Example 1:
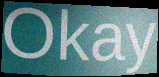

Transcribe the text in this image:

Okay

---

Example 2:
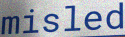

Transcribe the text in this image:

misled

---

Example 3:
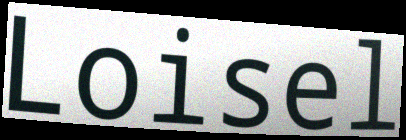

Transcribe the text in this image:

Loisel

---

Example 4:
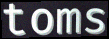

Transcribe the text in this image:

toms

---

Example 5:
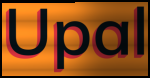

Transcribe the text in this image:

Upal